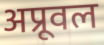
अप्रूवल